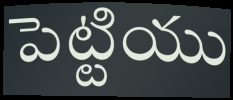
పెట్టియు